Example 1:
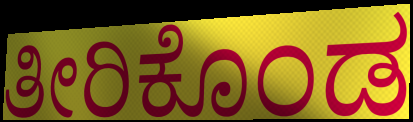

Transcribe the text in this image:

ತೀರಿಕೊಂಡ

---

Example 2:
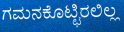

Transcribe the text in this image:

ಗಮನಕೊಟ್ಟಿರಲಿಲ್ಲ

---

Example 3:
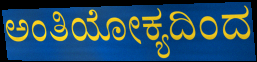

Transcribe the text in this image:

ಅಂತಿಯೋಕ್ಯದಿಂದ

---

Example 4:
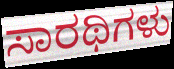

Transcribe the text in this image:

ಸಾರಥಿಗಳು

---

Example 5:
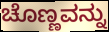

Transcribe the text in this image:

ಚೊಣ್ಣವನ್ನು